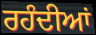
ਰਹੰਦੀਆਂ